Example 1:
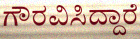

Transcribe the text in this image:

ಗೌರವಿಸಿದ್ದಾರೆ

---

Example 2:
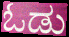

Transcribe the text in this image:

ಓಡು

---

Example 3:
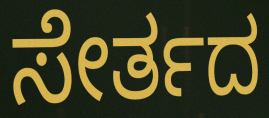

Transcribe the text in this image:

ಸೇರ್ತದ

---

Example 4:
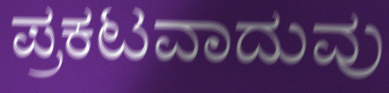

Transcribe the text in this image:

ಪ್ರಕಟವಾದುವು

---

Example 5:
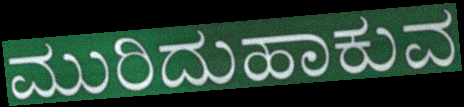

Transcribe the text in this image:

ಮುರಿದುಹಾಕುವ